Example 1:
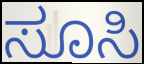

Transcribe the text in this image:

ಸೂಸಿ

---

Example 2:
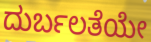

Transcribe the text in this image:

ದುರ್ಬಲತೆಯೇ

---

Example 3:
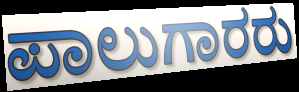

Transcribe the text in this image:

ಪಾಲುಗಾರರು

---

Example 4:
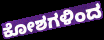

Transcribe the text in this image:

ಕೋಶಗಳಿಂದ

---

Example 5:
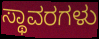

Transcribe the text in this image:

ಸ್ಥಾವರಗಳು